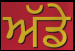
ਅੱਡੇ